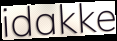
idakke